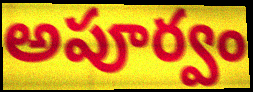
అపూర్వం